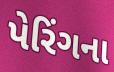
પેરિંગના